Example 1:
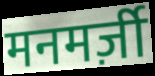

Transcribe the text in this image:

मनमर्ज़ी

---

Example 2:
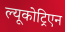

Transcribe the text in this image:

ल्यूकोट्रिएन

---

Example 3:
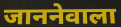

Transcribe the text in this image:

जाननेवाला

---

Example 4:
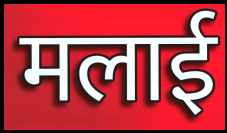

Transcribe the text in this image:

मलाई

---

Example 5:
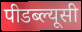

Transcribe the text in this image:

पीडब्ल्यूसी